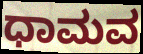
ಧಾಮವ